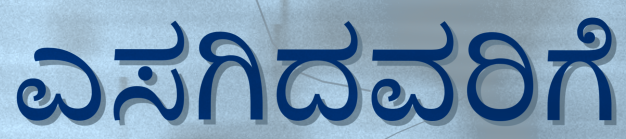
ಎಸಗಿದವರಿಗೆ